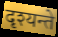
दृश्यन्ते